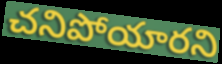
చనిపోయారని